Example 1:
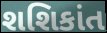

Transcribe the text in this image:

શશિકાંત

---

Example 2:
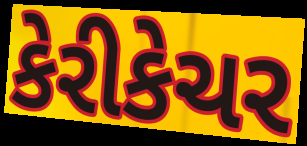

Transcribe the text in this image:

કેરીકેચર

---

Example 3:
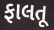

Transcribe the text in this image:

ફાલતૂ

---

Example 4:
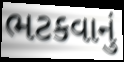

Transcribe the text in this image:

ભટકવાનું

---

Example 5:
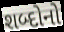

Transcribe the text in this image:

શબ્દોનો